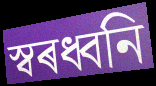
স্বৰধ্বনি